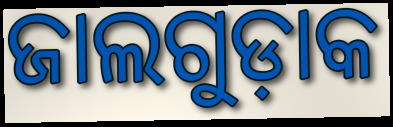
ଜାଲଗୁଡ଼ାକ